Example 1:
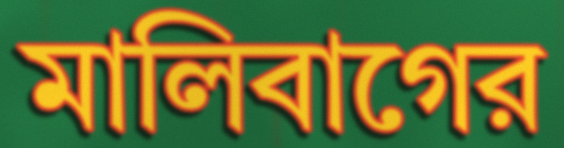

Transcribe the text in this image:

মালিবাগের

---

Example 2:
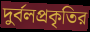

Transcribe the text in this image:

দুর্বলপ্রকৃতির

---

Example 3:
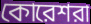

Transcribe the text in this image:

কোরেশরা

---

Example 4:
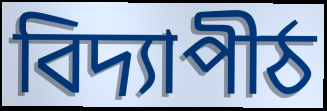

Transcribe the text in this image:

বিদ্যাপীঠ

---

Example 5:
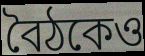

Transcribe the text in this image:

বৈঠকেও